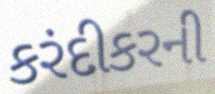
કરંદીકરની